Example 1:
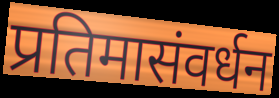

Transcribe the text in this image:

प्रतिमासंवर्धन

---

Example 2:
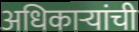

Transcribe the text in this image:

अधिकाऱ्यांची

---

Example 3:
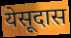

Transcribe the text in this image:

येसूदास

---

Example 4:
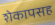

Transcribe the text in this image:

शेकापसह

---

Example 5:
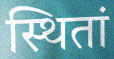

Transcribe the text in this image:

स्थितां